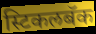
स्टिकलबॅक